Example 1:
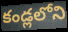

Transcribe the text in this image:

కండ్లలోని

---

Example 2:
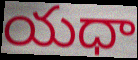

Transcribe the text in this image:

యధా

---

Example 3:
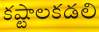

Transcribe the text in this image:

కష్టాలకడలి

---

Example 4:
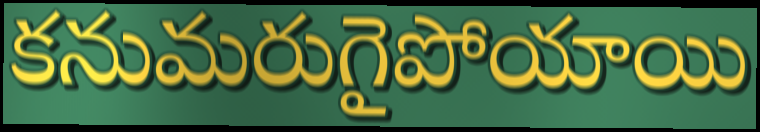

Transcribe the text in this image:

కనుమరుగైపోయాయి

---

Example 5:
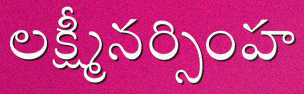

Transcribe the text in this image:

లక్ష్మీనర్సింహ